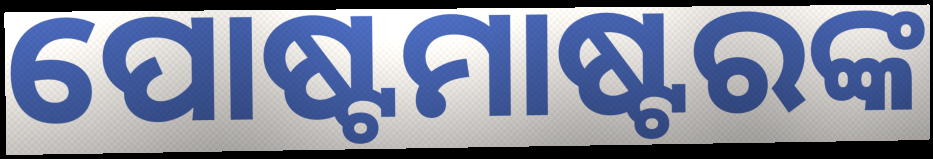
ପୋଷ୍ଟମାଷ୍ଟରଙ୍କ